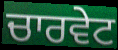
ਚਾਰਵੇਟ